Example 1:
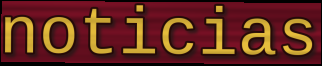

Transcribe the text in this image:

noticias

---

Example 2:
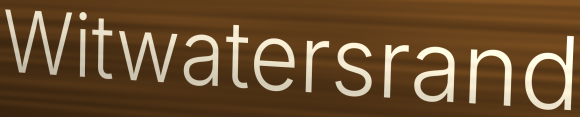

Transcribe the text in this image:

Witwatersrand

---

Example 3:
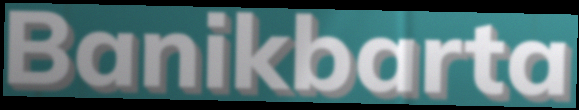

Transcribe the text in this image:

Banikbarta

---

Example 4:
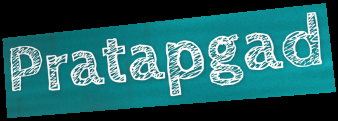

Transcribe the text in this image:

Pratapgad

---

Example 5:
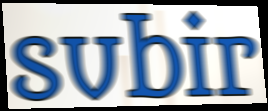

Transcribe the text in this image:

subir